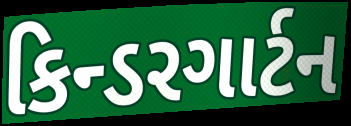
કિન્ડરગાર્ટન